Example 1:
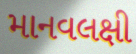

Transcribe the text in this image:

માનવલક્ષી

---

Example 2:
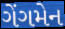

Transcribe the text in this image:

ગેંગમેન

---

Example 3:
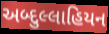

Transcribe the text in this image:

અબ્દુલ્લાહિયન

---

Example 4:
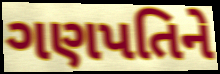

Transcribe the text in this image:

ગણપતિને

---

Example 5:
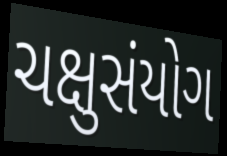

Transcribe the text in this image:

ચક્ષુસંયોગ